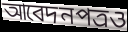
আবেদনপত্রও